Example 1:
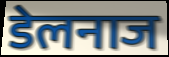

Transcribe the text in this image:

डेलनाज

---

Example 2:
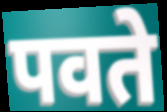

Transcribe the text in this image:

पवते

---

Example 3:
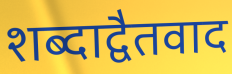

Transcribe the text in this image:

शब्दाद्वैतवाद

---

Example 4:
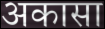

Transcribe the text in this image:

अकासा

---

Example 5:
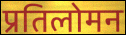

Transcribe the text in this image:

प्रतिलोमन